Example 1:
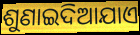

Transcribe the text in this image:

ଶୁଣାଇଦିଆଯାଏ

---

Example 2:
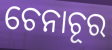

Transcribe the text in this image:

ଚେନାଚୂର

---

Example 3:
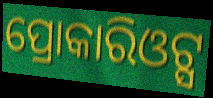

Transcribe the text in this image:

ପ୍ରୋକାରିଓଟ୍ସ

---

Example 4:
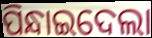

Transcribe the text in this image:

ପିନ୍ଧାଇଦେଲା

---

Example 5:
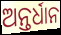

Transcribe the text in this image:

ଅନ୍ତର୍ଧାନ